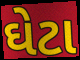
ઘેટા